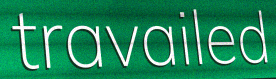
travailed